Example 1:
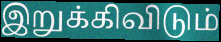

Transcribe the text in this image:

இறுக்கிவிடும்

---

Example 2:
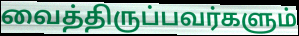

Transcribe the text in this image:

வைத்திருப்பவர்களும்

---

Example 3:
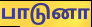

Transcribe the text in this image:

பாடுனா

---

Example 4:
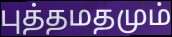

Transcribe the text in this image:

புத்தமதமும்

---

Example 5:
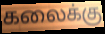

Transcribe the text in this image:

கலைக்கு